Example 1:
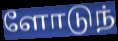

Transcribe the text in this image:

ளோடுந்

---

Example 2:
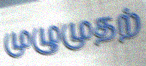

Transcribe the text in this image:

முழுமுதற்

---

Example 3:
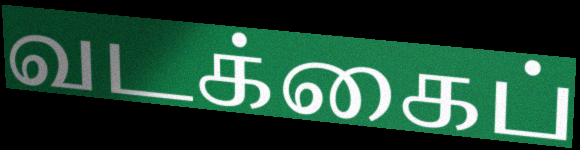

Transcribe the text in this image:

வடக்கைப்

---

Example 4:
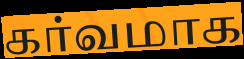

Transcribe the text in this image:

கர்வமாக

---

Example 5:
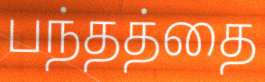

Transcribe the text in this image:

பந்தத்தை